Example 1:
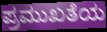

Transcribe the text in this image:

ಪ್ರಮುಖತೆಯ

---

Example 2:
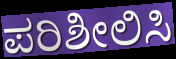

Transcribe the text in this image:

ಪರಿಶೀಲಿಸಿ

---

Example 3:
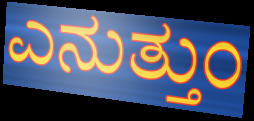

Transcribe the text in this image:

ಎನುತ್ತುಂ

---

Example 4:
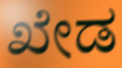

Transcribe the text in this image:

ಖೇಡ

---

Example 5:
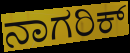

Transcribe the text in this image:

ನಾಗರಿಕ್